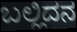
ಬಲ್ಲಿದನ